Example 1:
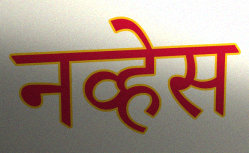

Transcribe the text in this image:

नव्हेस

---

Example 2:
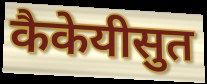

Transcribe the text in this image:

कैकेयीसुत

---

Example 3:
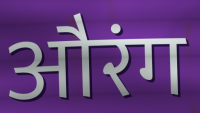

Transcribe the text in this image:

औरंग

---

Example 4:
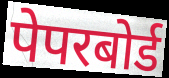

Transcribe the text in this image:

पेपरबोर्ड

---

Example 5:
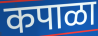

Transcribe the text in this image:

कपाळा